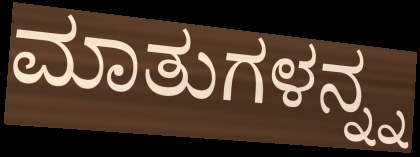
ಮಾತುಗಳನ್ನ್ನ